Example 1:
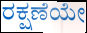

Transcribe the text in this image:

ರಕ್ಷಣೆಯೇ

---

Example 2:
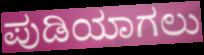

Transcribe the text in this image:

ಪುಡಿಯಾಗಲು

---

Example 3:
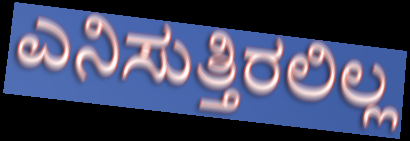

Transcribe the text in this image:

ಎನಿಸುತ್ತಿರಲಿಲ್ಲ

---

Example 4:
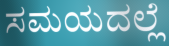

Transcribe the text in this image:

ಸಮಯದಲ್ಲೆ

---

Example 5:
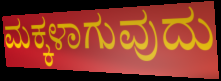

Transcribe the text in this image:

ಮಕ್ಕಳಾಗುವುದು